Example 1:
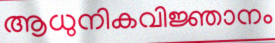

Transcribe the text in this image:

ആധുനികവിജ്ഞാനം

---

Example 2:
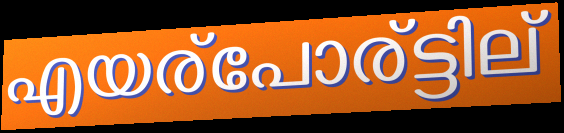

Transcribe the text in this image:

എയര്പോര്ട്ടില്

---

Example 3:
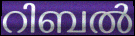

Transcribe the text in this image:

റിബൽ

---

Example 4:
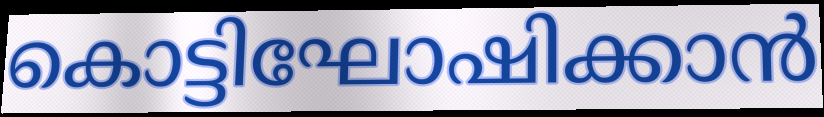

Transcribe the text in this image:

കൊട്ടിഘോഷിക്കാൻ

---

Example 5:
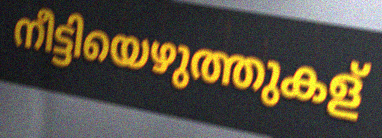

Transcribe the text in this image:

നീട്ടിയെഴുത്തുകള്